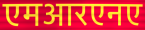
एमआरएनए